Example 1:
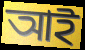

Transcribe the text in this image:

আই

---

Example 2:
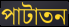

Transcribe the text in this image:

পাটাতন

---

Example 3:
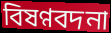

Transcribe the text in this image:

বিষণ্ণবদনা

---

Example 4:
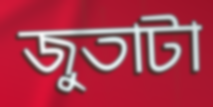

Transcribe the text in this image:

জুতাটা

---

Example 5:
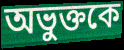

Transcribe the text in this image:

অভুক্তকে